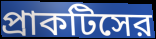
প্রাকটিসের